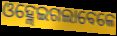
ଓହ୍ଲେଇଗଲାବେଳେ